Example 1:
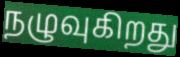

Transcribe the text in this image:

நழுவுகிறது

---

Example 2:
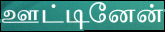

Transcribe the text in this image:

ஊட்டினேன்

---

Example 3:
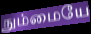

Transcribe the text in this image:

நும்மையே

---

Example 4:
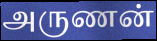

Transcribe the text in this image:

அருணன்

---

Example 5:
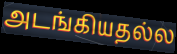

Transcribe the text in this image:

அடங்கியதல்ல